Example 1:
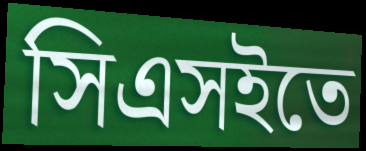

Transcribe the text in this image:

সিএসইতে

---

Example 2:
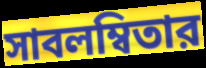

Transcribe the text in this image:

সাবলম্বিতার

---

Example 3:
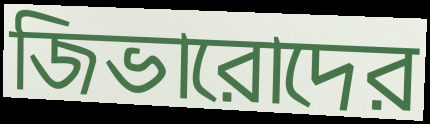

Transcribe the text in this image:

জিভারোদের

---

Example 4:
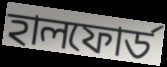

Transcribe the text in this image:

হালফোর্ড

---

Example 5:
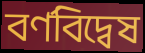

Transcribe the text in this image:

বর্ণবিদ্বেষ